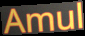
Amul